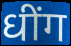
धींग